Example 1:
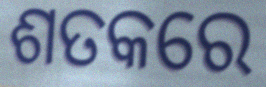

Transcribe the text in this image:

ଶତକରେ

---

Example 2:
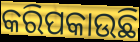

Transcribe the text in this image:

କରିପକାଉଛି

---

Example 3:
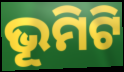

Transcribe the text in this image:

ଭୂମିଟି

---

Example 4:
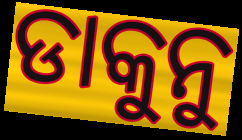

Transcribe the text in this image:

ଡାକୁନୁ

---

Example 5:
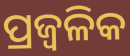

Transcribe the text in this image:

ପ୍ରଜ୍ଵଳିକ